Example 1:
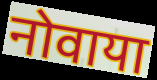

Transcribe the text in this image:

नोवाया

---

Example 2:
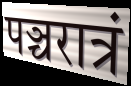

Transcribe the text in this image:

पञ्चरात्रं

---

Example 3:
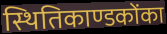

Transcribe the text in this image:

स्थितिकाण्डकोंका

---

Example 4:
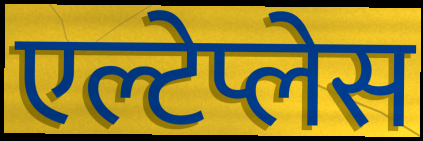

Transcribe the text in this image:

एल्टेप्लेस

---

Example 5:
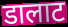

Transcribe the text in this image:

डालाट